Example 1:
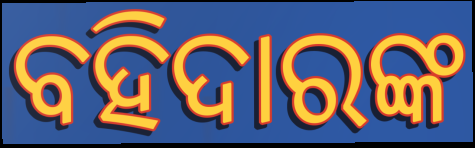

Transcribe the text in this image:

ବହିଦାରଙ୍କ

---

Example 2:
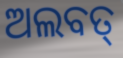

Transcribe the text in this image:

ଅଲବତ୍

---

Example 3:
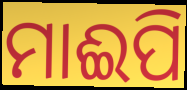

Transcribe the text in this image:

ମାଈପି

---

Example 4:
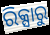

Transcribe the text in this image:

ରିକ୍ସାରୁ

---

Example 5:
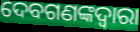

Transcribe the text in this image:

ଦେବଗଣଙ୍କଦ୍ୱାରା